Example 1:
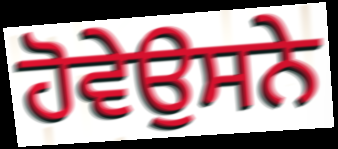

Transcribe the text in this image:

ਹੋਵੇਉਸਨੇ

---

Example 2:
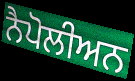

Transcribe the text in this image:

ਨੈਪੋਲੀਅਨ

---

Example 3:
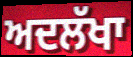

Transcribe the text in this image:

ਅਦਲੱਖਾ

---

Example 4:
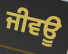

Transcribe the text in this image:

ਜੀਵਊ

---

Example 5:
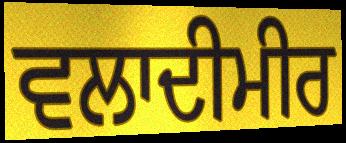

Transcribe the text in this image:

ਵਲਾਦੀਮੀਰ